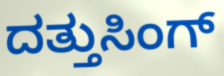
ದತ್ತುಸಿಂಗ್